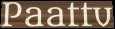
Paattu